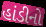
હાંડીનો